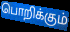
பொறிக்கும்